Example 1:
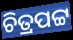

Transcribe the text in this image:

ଚିତ୍ରପଟ୍ଟ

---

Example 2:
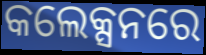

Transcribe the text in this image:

କଲେକ୍ସନରେ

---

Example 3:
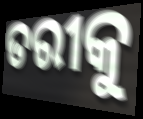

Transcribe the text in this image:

ତରୀକୁ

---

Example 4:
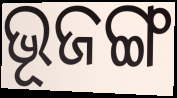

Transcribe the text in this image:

ଭୂଜଙ୍ଗ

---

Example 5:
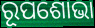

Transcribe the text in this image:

ରୂପଶୋଭା